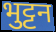
भुट्टन